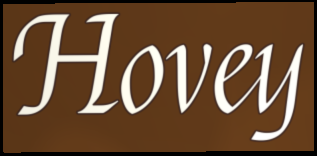
Hovey